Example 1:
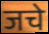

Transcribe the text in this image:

जचे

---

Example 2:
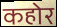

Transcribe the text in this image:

कहोर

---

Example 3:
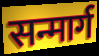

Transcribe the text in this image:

सन्मार्ग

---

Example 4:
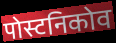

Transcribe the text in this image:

पोस्टनिकोव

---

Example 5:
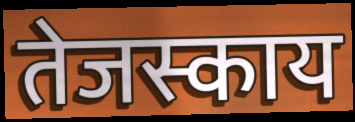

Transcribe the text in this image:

तेजस्काय